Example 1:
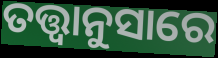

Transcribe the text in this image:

ତତ୍ତ୍ୱାନୁସାରେ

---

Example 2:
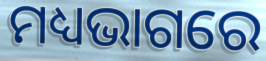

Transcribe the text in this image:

ମଧ୍ୟଭାଗରେ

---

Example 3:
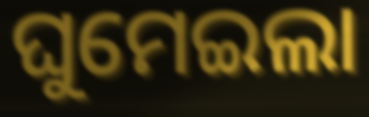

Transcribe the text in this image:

ଘୁମେଇଲା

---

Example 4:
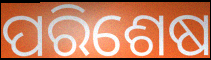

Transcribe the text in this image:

ପରିଶେଷ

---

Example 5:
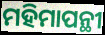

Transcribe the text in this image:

ମହିମାପନ୍ଥୀ